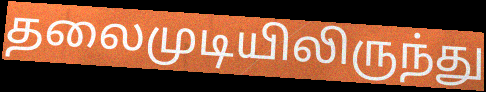
தலைமுடியிலிருந்து